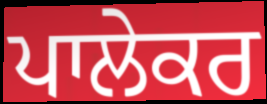
ਪਾਲੇਕਰ